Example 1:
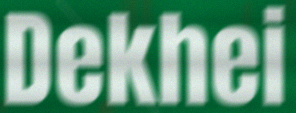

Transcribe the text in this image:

Dekhei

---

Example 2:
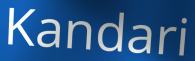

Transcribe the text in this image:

Kandari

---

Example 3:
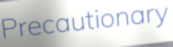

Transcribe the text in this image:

Precautionary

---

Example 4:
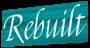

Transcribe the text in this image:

Rebuilt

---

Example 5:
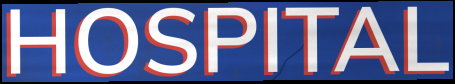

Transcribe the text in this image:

HOSPITAL